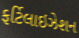
ફર્ટિલાઇઝેશન